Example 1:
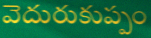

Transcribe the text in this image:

వెదురుకుప్పం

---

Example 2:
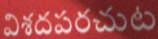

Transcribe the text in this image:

విశదపరచుట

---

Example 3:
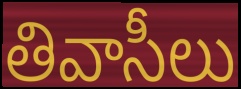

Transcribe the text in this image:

తివాసీలు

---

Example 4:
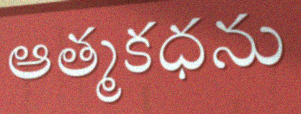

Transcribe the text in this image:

ఆత్మకధను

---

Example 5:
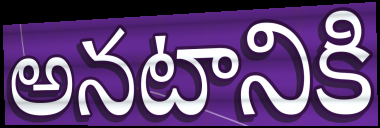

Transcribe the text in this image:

అనటానికి